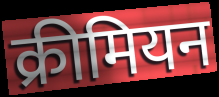
क्रीमियन